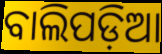
ବାଲିପଡ଼ିଆ